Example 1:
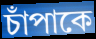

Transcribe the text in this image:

চাঁপাকে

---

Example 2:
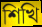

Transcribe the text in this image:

শিখি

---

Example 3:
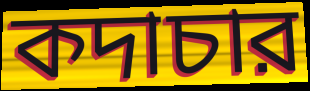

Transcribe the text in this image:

কদাচার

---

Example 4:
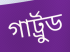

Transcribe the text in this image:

গার্ট্রুড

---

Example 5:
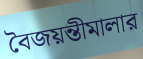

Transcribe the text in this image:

বৈজয়ন্তীমালার